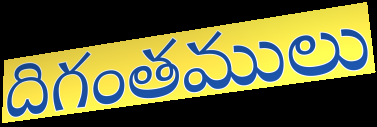
దిగంతములు